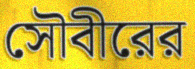
সৌবীরের